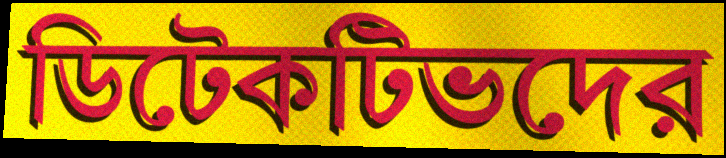
ডিটেকটিভদের